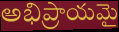
అభిప్రాయమై